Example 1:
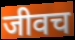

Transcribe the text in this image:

जीवच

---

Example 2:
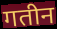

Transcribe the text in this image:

गतीन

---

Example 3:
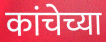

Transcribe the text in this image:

कांचेच्या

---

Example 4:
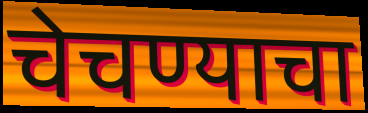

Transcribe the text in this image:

चेचण्याचा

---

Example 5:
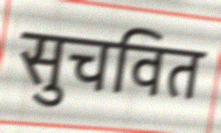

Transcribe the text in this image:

सुचवित